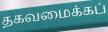
தகவமைக்கப்